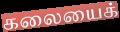
கலையைக்